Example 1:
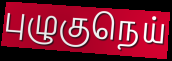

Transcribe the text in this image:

புழுகுநெய்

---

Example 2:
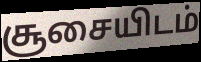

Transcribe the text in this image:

சூசையிடம்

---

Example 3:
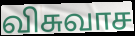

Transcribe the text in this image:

விசுவாச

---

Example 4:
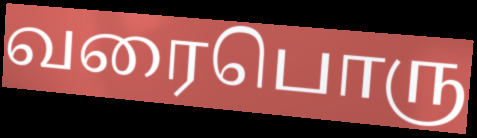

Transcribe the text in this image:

வரைபொரு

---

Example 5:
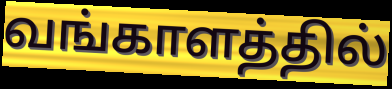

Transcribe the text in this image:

வங்காளத்தில்